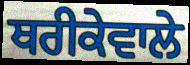
ਥਰੀਕੇਵਾਲੇ